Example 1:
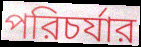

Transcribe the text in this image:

পরিচর্যার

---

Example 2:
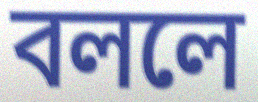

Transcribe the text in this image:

বললে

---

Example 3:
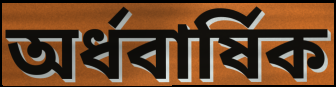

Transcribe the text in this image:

অর্ধবার্ষিক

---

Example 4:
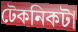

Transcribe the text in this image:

টেকনিকটা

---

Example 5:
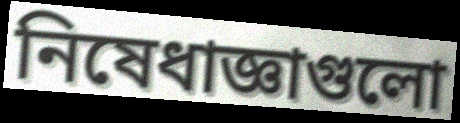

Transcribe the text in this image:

নিষেধাজ্ঞাগুলো